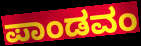
ಪಾಂಡವಂ